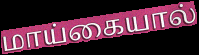
மாய்கையால்